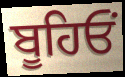
ਬੂਹਿਓਂ